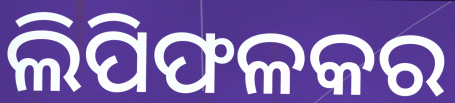
ଲିପିଫଳକର